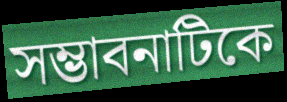
সম্ভাবনাটিকে